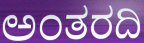
ಅಂತರದಿ